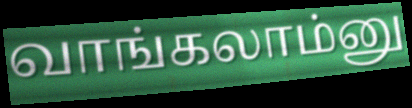
வாங்கலாம்னு